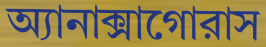
অ্যানাক্সাগোরাস